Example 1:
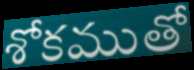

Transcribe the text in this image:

శోకముతో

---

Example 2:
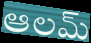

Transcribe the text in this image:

ఆలమ్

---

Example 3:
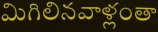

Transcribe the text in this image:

మిగిలినవాళ్లంతా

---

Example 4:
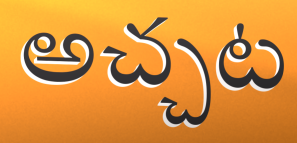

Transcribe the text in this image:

అచ్చట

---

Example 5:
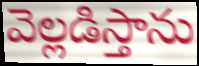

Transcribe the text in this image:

వెల్లడిస్తాను